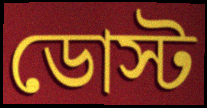
ডোস্ট